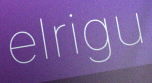
elrigu